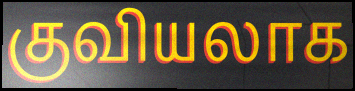
குவியலாக